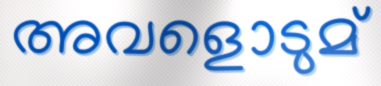
അവളൊടുമ്